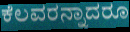
ಕೆಲವರನ್ನಾದರೂ